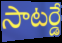
సాటర్డే